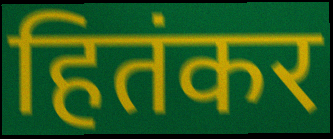
हितंकर